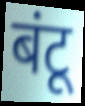
बंटू